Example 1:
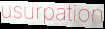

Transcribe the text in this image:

usurpation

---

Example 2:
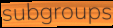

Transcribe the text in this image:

subgroups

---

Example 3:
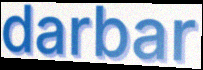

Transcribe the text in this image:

darbar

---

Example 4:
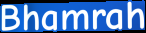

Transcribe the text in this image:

Bhamrah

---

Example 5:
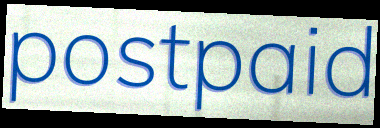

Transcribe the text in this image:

postpaid